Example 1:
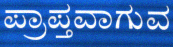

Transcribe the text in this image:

ಪ್ರಾಪ್ತವಾಗುವ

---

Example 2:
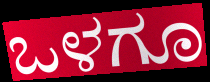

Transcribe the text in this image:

ಒಳಗೂ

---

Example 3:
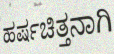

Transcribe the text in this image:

ಹರ್ಷಚಿತ್ತನಾಗಿ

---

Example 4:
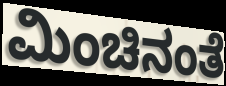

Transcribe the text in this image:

ಮಿಂಚಿನಂತೆ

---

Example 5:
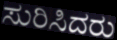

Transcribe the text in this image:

ಸುರಿಸಿದರು